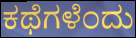
ಕಥೆಗಳೆಂದು